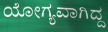
ಯೋಗ್ಯವಾಗಿದ್ದ